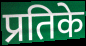
प्रतिके